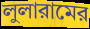
লুলারামের